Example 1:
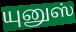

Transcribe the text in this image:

யுனுஸ்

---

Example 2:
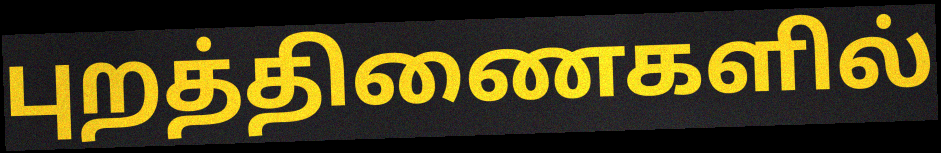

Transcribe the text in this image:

புறத்திணைகளில்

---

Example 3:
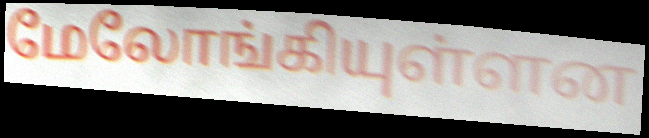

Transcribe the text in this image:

மேலோங்கியுள்ளன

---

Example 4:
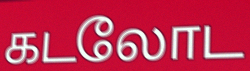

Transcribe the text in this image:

கடலோட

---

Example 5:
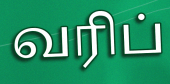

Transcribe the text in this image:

வரிப்